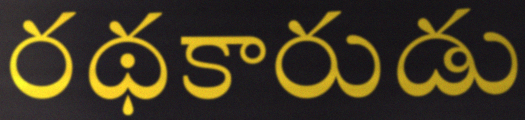
రథకారుడు